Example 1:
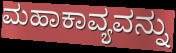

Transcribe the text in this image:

ಮಹಾಕಾವ್ಯವನ್ನು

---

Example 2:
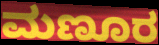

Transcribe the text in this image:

ಮಣೂರ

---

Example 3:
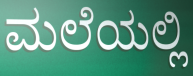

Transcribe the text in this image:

ಮಲೆಯಲ್ಲಿ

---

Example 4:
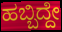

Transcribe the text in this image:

ಹಬ್ಬಿದ್ದೇ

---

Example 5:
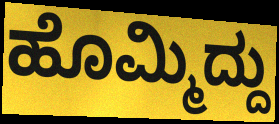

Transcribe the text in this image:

ಹೊಮ್ಮಿದ್ದು